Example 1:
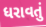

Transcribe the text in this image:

ધરાવતું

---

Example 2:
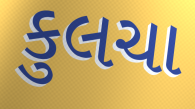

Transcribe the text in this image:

કુલચા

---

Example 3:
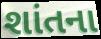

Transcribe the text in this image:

શાંતના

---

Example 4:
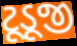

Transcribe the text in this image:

ટૂડૂજી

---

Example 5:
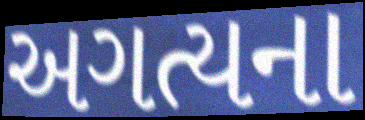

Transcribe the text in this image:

અગત્યના